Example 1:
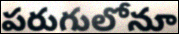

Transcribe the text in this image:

పరుగులోనూ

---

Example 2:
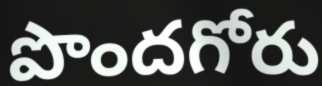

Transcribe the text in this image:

పొందగోరు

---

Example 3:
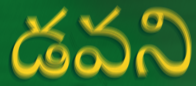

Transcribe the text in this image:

డవని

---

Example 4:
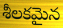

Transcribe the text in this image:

శీలకమైన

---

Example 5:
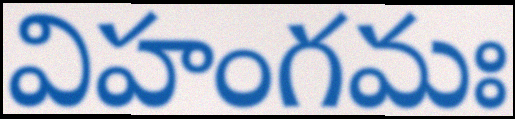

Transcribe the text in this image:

విహంగమః